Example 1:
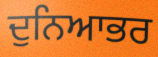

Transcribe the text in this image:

ਦੁਨਿਆਭਰ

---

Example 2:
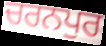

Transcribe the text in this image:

ਚਰਨਪੁਰ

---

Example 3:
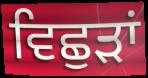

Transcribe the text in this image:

ਵਿਛੁੜਾਂ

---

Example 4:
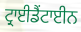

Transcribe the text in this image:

ਟ੍ਰਾਈਡੈਂਟਾਈਨ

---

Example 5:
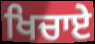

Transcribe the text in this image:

ਖਿਚਾਏ